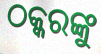
ଠକ୍କରଙ୍କୁ